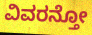
ವಿವರನ್ತೋ